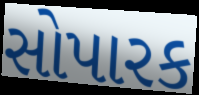
સોપારક